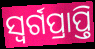
ସ୍ୱର୍ଗପ୍ରାପ୍ତି